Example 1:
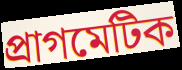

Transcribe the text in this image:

প্ৰাগমেটিক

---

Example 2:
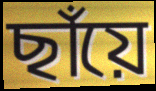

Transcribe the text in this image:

ছাঁয়ে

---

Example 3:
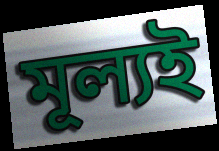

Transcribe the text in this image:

মূল্যই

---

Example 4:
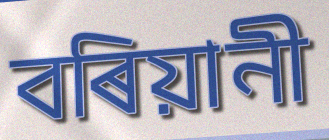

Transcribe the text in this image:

বৰিয়ানী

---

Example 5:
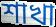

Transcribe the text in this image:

শাখা